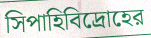
সিপাহিবিদ্রোহের